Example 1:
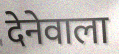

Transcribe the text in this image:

देनेवाला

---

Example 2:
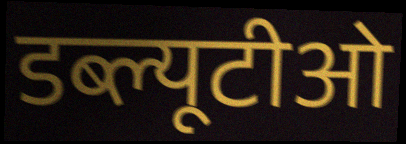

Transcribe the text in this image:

डब्ल्यूटीओ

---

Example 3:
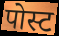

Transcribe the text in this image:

पोस्ट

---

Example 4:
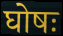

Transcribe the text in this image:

घोषः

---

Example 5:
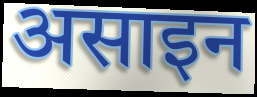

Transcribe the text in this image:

असाइन